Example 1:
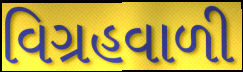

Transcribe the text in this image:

વિગ્રહવાળી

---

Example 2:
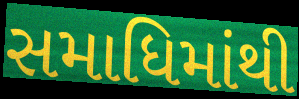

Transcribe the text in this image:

સમાધિમાંથી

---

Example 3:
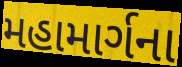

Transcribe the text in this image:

મહામાર્ગના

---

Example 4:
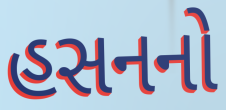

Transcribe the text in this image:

હસનનો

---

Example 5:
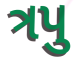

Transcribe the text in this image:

ત્રપુ